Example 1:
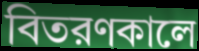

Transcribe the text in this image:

বিতরণকালে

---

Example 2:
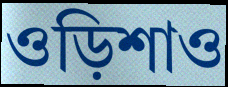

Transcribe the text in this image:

ওড়িশাও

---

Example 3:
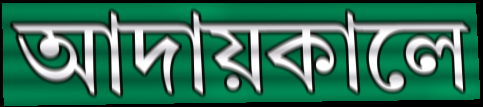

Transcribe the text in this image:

আদায়কালে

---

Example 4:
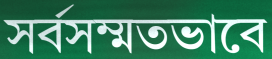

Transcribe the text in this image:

সর্বসম্মতভাবে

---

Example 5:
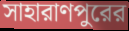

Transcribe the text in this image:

সাহারাণপুরের